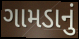
ગામડાનું